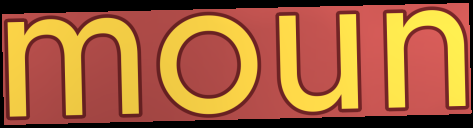
moun